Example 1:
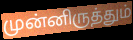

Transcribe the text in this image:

முன்னிருத்தும்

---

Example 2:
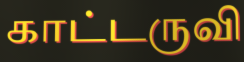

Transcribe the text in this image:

காட்டருவி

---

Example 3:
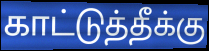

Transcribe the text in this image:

காட்டுத்தீக்கு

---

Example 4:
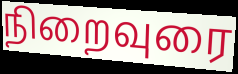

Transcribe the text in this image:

நிறைவுரை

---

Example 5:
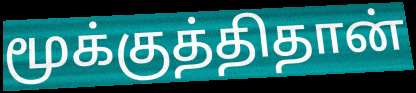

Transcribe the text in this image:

மூக்குத்திதான்